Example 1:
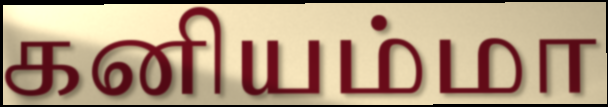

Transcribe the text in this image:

கனியம்மா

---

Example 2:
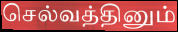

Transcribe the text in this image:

செல்வத்தினும்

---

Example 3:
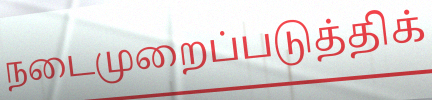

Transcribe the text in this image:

நடைமுறைப்படுத்திக்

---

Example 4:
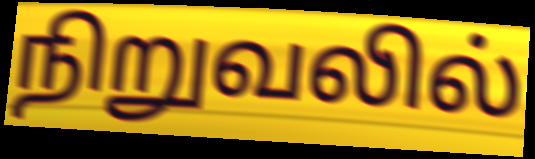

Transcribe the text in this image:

நிறுவலில்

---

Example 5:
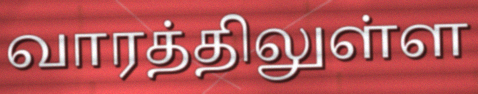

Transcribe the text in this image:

வாரத்திலுள்ள